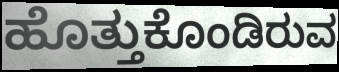
ಹೊತ್ತುಕೊಂಡಿರುವ